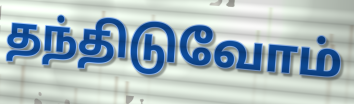
தந்திடுவோம்